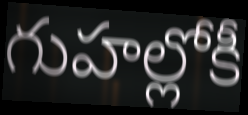
గుహల్లోకీ